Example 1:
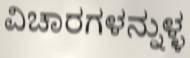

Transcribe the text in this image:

ವಿಚಾರಗಳನ್ನುಳ್ಳ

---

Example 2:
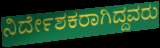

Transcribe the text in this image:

ನಿರ್ದೇಶಕರಾಗಿದ್ದವರು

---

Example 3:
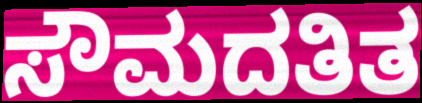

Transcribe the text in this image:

ಸೌಮದತಿತ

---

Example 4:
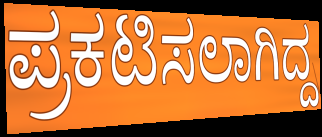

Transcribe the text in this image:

ಪ್ರಕಟಿಸಲಾಗಿದ್ದ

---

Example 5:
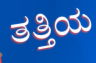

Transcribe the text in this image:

ತತ್ತಿಯ